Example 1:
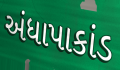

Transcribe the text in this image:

અંધાપાકાંડ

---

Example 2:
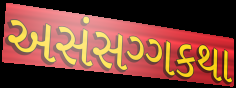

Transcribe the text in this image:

અસંસગ્ગકથા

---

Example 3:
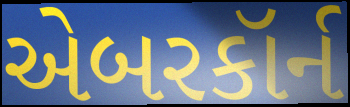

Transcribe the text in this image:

એબરકૉર્ન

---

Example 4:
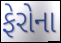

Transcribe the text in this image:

ફેરોના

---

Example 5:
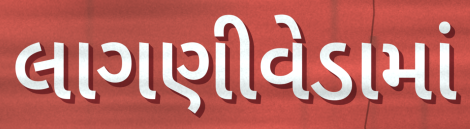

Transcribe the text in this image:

લાગણીવેડામાં